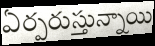
ఏర్పరుస్తున్నాయి